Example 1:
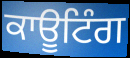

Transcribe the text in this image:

ਕਾਊਟਿੰਗ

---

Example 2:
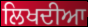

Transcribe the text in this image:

ਲਿਖਦੀਆ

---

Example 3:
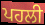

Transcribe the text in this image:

ਪਹਲੀ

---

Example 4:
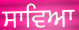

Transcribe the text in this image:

ਸਾਵਿਆ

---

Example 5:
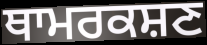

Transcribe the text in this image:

ਥਾਮਰਕਸ਼ਣ